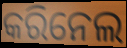
କରିନେଲ